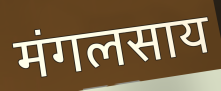
मंगलसाय